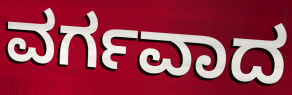
ವರ್ಗವಾದ